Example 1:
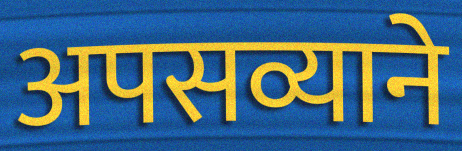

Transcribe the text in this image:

अपसव्याने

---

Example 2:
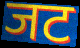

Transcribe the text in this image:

जट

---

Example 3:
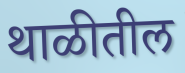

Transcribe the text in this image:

थाळीतील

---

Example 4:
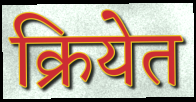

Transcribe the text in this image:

क्रियेत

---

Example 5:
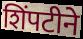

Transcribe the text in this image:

शिंपटीने